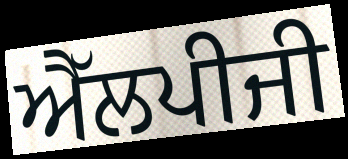
ਐੱਲਪੀਜੀ